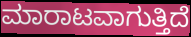
ಮಾರಾಟವಾಗುತ್ತಿದೆ